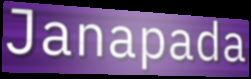
Janapada